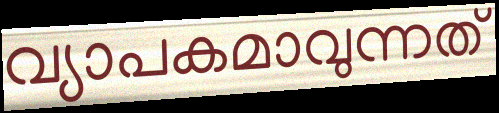
വ്യാപകമാവുന്നത്